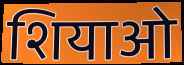
शियाओ